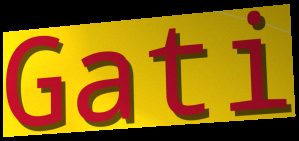
Gati